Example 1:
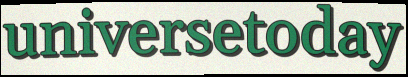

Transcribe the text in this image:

universetoday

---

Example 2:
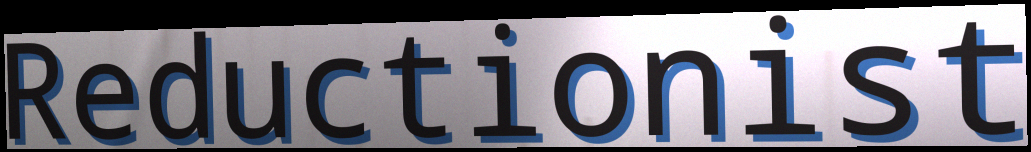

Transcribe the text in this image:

Reductionist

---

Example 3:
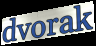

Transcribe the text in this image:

dvorak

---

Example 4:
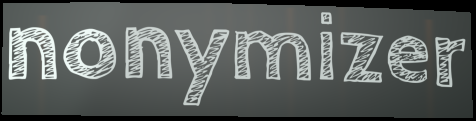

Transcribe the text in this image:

nonymizer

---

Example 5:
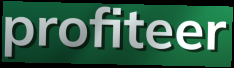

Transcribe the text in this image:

profiteer